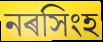
নৰসিংহ